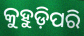
କୁହୁଡ଼ିପରି